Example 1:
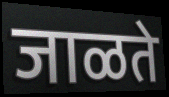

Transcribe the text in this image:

जाळते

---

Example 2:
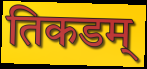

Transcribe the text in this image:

तिकडम्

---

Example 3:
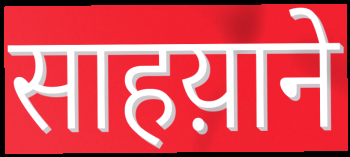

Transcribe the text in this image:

साहय़ाने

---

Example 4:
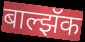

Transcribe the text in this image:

बाल्झॅक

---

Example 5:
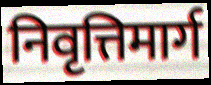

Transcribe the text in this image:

निवृत्तिमार्ग